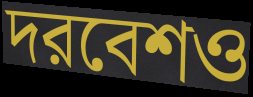
দরবেশও